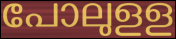
പോലുളള